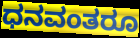
ಧನವಂತರೂ